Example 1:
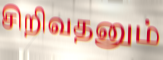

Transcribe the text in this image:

சிறிவதனும்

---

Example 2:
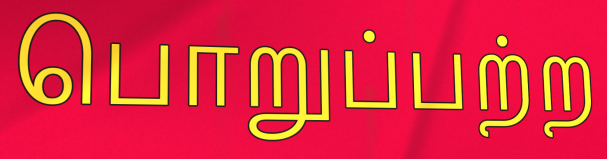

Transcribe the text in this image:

பொறுப்பற்ற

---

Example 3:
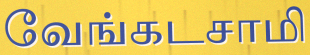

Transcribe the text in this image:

வேங்கடசாமி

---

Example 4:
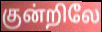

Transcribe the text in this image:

குன்றிலே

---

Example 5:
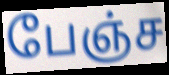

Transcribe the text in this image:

பேஞ்ச